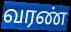
வரண்